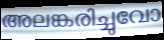
അലങ്കരിച്ചുവോ